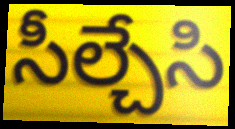
సీల్చేసి